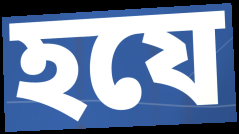
হযে